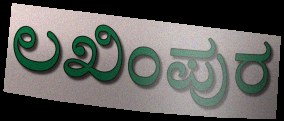
ಲಖಿಂಪುರ